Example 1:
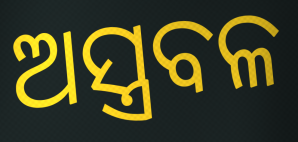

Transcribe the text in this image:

ଅସ୍ତ୍ରବଳ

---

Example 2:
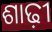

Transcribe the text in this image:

ଶାଢ଼ୀ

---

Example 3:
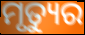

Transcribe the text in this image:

ମୃତ୍ୟୁର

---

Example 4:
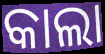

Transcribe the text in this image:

କାଲା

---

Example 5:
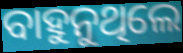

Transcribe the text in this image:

ବାହୁନୁଥିଲେ